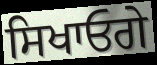
ਸਿਖਾਓਗੇ